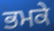
ਭਮਕੇ